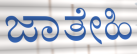
ಜಾತೇಹಿ